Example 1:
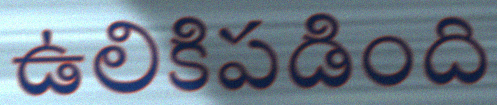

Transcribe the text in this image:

ఉలికిపడింది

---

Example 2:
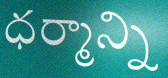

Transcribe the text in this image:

ధర్మాన్ని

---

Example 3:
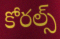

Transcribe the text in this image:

కోరల్స్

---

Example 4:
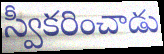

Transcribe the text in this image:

స్వీకరించాడు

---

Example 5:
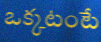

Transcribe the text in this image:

ఒక్కటంటే